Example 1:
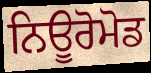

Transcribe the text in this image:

ਨਿਊਰੋਮੋਡ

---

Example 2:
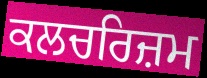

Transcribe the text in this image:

ਕਲਚਰਿਜ਼ਮ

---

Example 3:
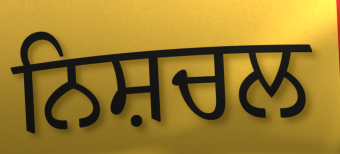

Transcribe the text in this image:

ਨਿਸ਼ਚਲ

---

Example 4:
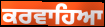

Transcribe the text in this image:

ਕਰਵਾਹਿਆ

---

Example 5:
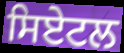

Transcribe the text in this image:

ਸਿਏਟਲ